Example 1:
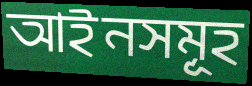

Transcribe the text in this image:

আইনসমূহ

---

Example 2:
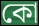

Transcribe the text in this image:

কো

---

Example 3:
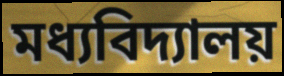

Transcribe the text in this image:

মধ্যবিদ্যালয়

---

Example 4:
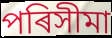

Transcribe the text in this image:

পৰিসীমা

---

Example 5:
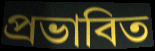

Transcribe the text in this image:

প্ৰভাবিত